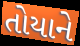
તોયાને